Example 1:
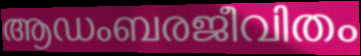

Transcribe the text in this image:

ആഡംബരജീവിതം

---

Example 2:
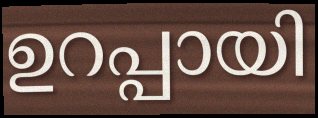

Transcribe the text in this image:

ഉറപ്പായി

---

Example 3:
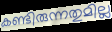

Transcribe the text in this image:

കണ്ടിരുന്നതുമില്ല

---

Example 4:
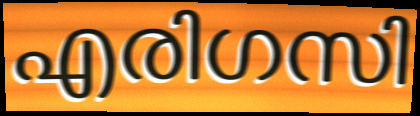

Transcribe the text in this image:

എരിഗസി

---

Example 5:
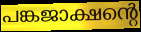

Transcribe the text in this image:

പങ്കജാക്ഷന്റെ